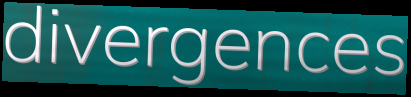
divergences